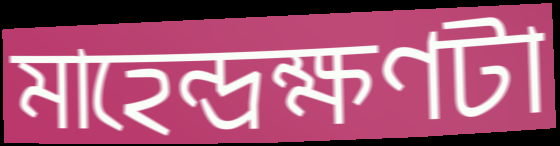
মাহেন্দ্রক্ষণটা